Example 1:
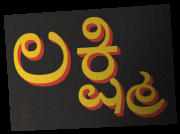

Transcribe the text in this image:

ಲಕ್ಷ್ಮಿ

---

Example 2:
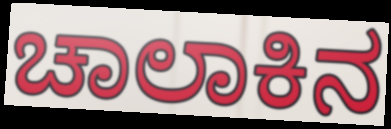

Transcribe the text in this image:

ಚಾಲಾಕಿನ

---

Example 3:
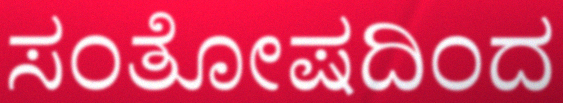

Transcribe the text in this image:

ಸಂತೋಷದಿಂದ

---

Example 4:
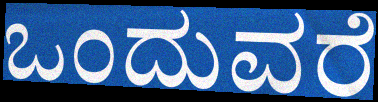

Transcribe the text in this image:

ಒಂದುವರೆ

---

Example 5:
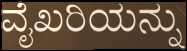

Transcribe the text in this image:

ವೈಖರಿಯನ್ನು